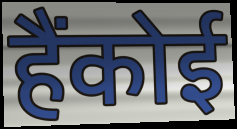
हैंकोई